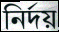
নিৰ্দয়